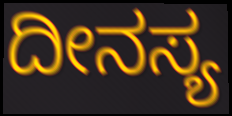
ದೀನಸ್ಯ